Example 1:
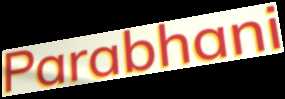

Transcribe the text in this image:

Parabhani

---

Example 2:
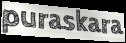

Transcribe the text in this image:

puraskara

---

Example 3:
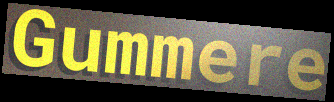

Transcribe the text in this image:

Gummere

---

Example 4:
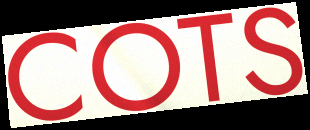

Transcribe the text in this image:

COTS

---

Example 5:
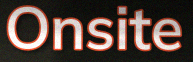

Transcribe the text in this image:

Onsite